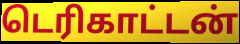
டெரிகாட்டன்